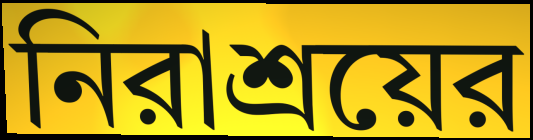
নিরাশ্রয়ের